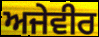
ਅਜੇਵੀਰ